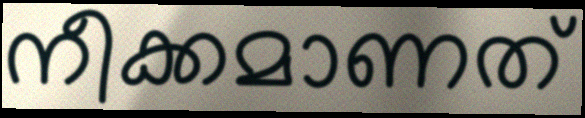
നീക്കമാണത്